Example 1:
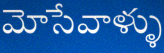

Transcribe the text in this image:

మోసేవాళ్ళు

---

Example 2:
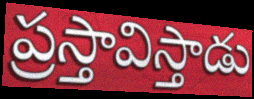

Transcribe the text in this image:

ప్రస్తావిస్తాడు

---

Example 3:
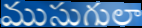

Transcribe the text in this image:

ముసుగులా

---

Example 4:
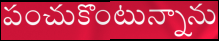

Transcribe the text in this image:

పంచుకొంటున్నాను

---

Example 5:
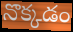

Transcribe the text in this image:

నొక్కడం